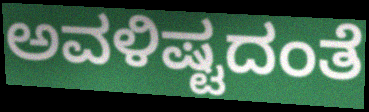
ಅವಳಿಷ್ಟದಂತೆ